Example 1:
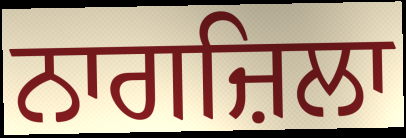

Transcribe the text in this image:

ਨਾਗਜ਼ਿਲਾ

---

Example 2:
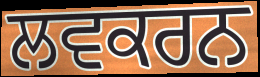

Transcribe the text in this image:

ਲਵਕਰਨ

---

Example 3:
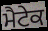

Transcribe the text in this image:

ਮੈਟੇਕ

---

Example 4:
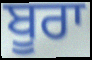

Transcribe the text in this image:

ਬੂਰਾ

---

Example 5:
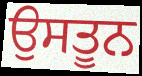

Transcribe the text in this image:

ਉਸਤੂਨ